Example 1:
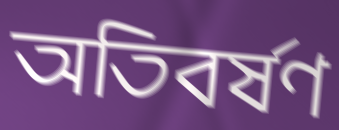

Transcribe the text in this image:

অতিবর্ষণ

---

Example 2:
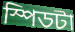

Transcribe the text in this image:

স্পিডটা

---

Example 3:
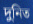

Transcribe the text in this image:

দুনিত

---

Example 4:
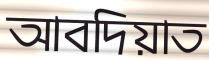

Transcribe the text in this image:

আবদিয়াত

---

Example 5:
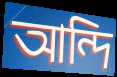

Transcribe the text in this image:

আন্দি